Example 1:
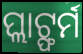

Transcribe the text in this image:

ପ୍ଲାଟ୍ଫର୍ମ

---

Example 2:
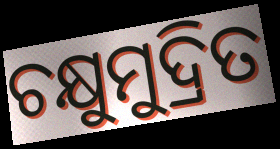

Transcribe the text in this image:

ଚକ୍ଷୁମୁଦ୍ରିତ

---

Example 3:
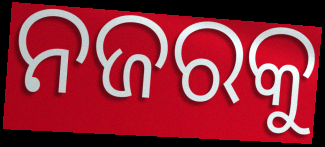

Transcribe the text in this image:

ନଜରକୁ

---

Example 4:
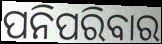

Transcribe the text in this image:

ପନିପରିବାର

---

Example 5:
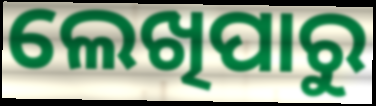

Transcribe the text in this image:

ଲେଖିପାରୁ